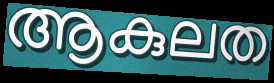
ആകുലത